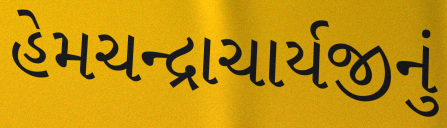
હેમચન્દ્રાચાર્યજીનું